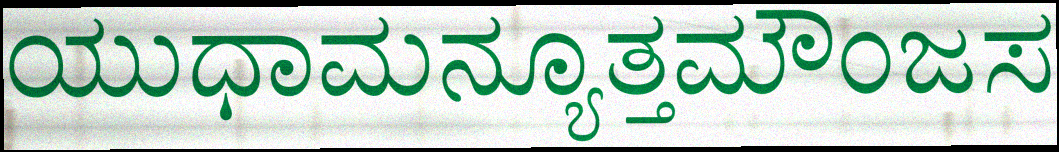
ಯುಧಾಮನ್ಯೂತ್ತಮೌಂಜಸ